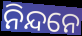
ନିନ୍ଦନେ